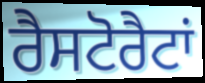
ਰੈਸਟੋਰੈਟਾਂ